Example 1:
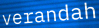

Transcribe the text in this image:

verandah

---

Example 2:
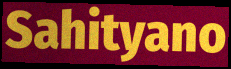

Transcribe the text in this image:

Sahityano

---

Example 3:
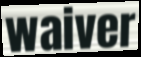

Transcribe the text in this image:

waiver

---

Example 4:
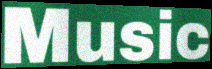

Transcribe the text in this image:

Music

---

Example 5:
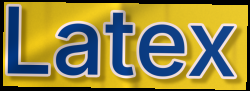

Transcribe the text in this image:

Latex